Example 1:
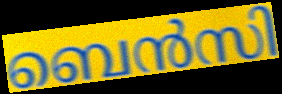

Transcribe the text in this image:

ബെൻസി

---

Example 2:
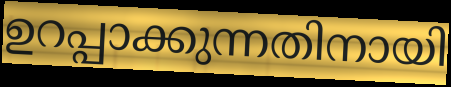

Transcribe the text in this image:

ഉറപ്പാക്കുന്നതിനായി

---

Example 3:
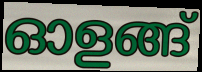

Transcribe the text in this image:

ഓളങ്ങ്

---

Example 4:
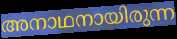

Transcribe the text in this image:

അനാഥനായിരുന്ന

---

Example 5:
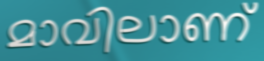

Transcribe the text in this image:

മാവിലാണ്